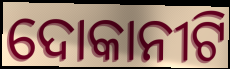
ଦୋକାନୀଟି